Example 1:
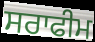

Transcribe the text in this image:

ਸਰਾਫੀਮ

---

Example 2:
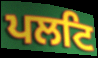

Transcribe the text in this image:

ਪਲਟਿ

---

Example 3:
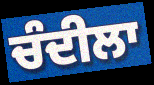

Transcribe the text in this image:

ਚੰਦੀਲਾ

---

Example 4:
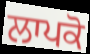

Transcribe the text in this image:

ਲਾਪਕੋ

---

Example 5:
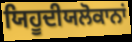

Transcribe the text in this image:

ਯਿਹੂਦੀਯਲੋਕਾਨਾਂ